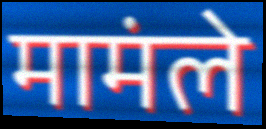
मामंले